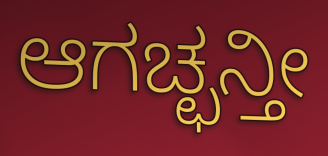
ಆಗಚ್ಛನ್ತೀ